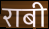
राबी